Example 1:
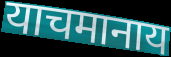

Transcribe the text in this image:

याचमानाय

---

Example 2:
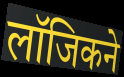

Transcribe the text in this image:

लॉजिकने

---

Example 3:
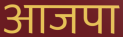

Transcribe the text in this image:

आजपा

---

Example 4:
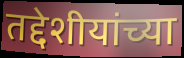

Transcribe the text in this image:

तद्देशीयांच्या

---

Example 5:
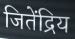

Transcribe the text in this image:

जितेंद्रिय